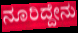
ನೂರಿದ್ದೇನು